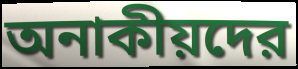
অনাকীয়দের